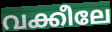
വക്കീലേ